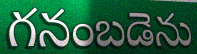
గనంబడెను